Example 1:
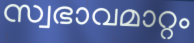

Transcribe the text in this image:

സ്വഭാവമാറ്റം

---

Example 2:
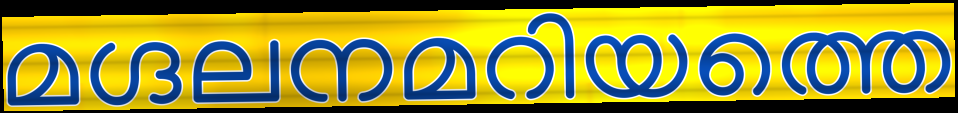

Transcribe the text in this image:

മഗ്ദലനമറിയത്തെ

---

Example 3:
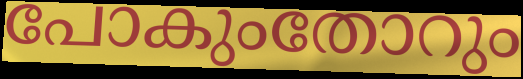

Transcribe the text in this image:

പോകുംതോറും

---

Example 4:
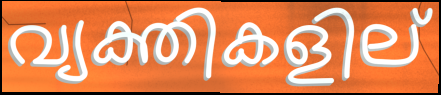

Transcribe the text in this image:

വ്യക്തികളില്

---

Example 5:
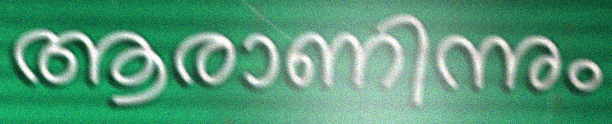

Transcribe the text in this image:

ആരാണിന്നും